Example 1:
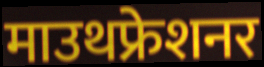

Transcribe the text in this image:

माउथफ्रेशनर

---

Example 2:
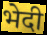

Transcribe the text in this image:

भेदी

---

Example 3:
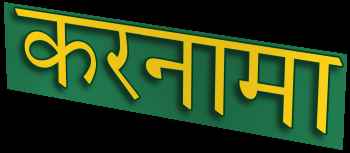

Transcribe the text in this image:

करनामा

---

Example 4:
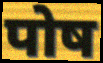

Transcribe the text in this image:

पोष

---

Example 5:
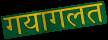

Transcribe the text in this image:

गयागलत